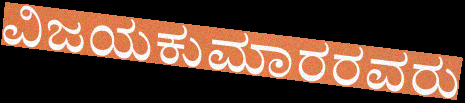
ವಿಜಯಕುಮಾರರವರು